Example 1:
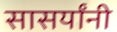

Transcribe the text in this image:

सासर्यांनी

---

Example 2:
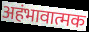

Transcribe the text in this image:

अहंभावात्मक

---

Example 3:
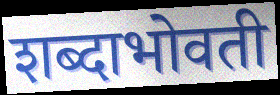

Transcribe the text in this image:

शब्दाभोवती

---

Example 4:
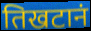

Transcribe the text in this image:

तिखटानं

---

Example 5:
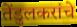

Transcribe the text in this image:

तेंडुलकरांचे